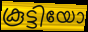
കൂട്ടിയോ